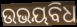
ଉଭୟବିଧ